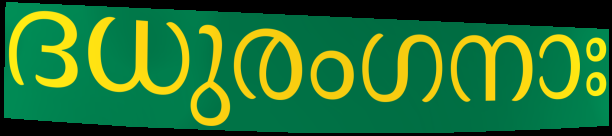
ദധുരംഗനാഃ